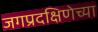
जगप्रदक्षिणेच्या